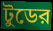
টুডের